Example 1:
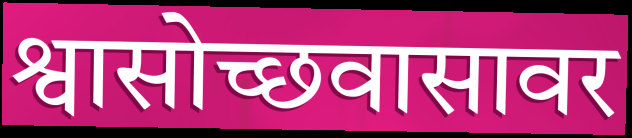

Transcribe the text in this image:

श्वासोच्छवासावर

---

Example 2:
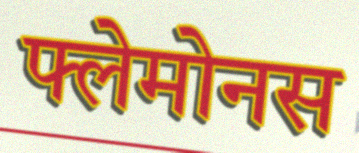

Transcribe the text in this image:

फ्लेमोनस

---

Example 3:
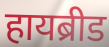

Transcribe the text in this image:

हायब्रीड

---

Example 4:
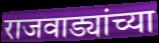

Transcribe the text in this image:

राजवाड्यांच्या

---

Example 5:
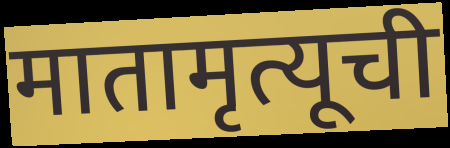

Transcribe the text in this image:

मातामृत्यूची